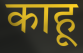
काहू